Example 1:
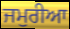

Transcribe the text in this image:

ਜਮੁਰੀਆ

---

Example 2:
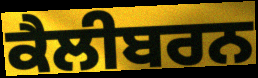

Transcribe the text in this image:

ਕੈਲੀਬਰਨ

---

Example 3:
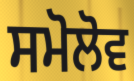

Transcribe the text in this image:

ਸਮੋਲੋਵ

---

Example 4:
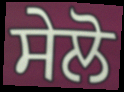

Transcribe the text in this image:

ਸੇਲੋ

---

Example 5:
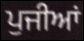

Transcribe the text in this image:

ਪੁਜੀਆਂ